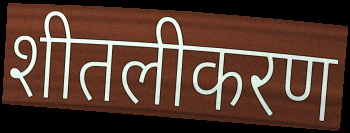
शीतलीकरण